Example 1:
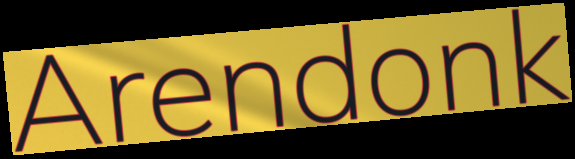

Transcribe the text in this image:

Arendonk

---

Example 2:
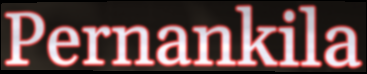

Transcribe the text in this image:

Pernankila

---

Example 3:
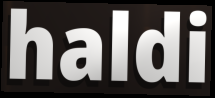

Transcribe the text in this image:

haldi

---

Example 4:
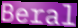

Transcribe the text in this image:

Beral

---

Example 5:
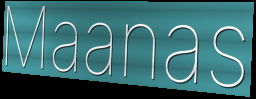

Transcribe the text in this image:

Maanas